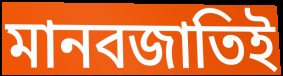
মানবজাতিই